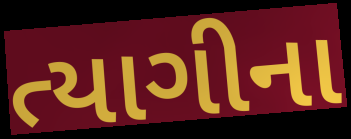
ત્યાગીના